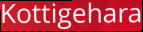
Kottigehara